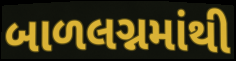
બાળલગ્નમાંથી